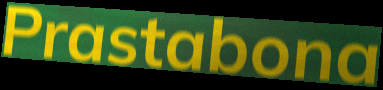
Prastabona